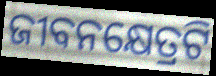
ଜୀବନକ୍ଷେତ୍ରଟି